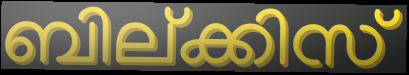
ബില്ക്കിസ്